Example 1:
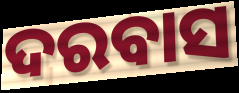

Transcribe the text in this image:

ଦରବାସ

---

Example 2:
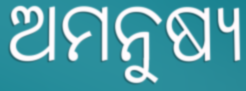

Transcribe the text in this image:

ଅମନୁଷ୍ୟ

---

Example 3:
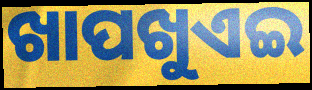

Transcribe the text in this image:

ଖାପଖୁଏଇ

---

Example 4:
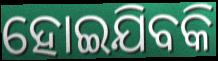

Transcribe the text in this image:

ହୋଇଯିବକି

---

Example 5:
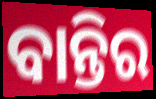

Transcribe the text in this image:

ବାନ୍ତିର